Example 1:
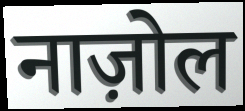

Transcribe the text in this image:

नाज़ोल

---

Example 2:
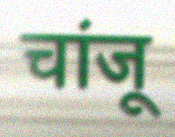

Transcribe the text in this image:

चांजू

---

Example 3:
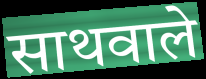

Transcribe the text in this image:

साथवाले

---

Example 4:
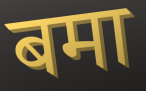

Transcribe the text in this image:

बमा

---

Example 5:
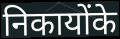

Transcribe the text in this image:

निकायोंके